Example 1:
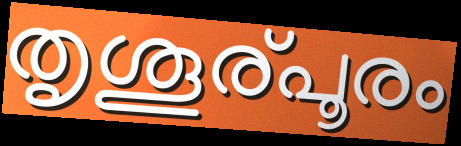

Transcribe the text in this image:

തൃശൂര്പൂരം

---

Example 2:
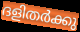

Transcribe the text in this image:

ദളിതർക്കു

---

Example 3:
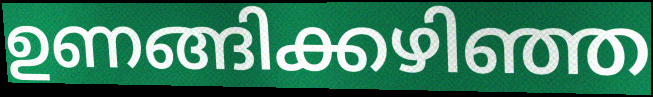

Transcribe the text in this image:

ഉണങ്ങിക്കഴിഞ്ഞ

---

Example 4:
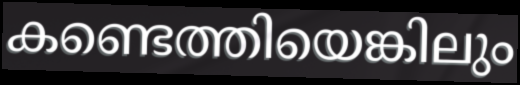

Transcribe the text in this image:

കണ്ടെത്തിയെങ്കിലും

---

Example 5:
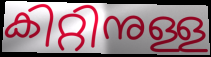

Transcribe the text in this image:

കിറ്റിനുള്ള